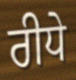
ਰੀਧੇ